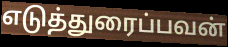
எடுத்துரைப்பவன்